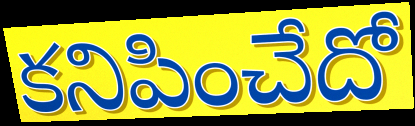
కనిపించేదో